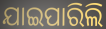
ଯାଇପାରିଲି